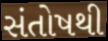
સંતોષથી